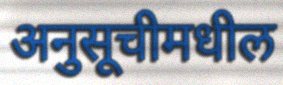
अनुसूचीमधील